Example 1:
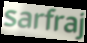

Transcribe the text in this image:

sarfraj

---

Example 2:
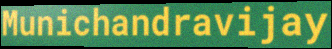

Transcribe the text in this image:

Munichandravijay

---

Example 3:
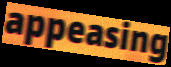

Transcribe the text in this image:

appeasing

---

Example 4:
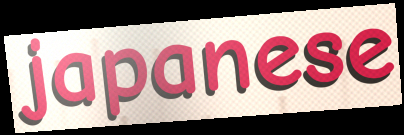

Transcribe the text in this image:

japanese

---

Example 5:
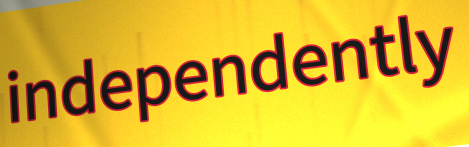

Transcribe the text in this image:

independently